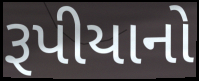
રૂપીયાનો